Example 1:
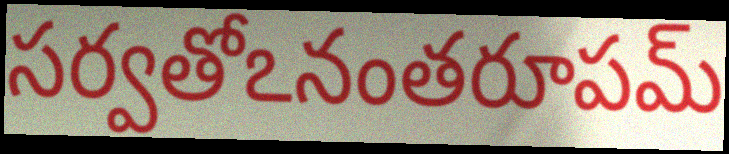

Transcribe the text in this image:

సర్వతోఽనంతరూపమ్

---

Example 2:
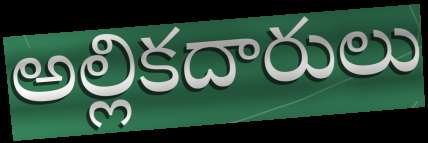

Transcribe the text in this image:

అల్లికదారులు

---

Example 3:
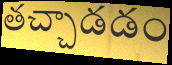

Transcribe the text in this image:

తచ్చాడడం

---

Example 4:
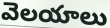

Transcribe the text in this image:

వెలయాలు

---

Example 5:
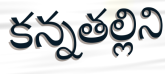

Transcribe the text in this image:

కన్నతల్లిని